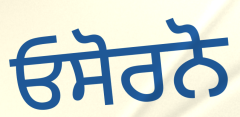
ਓਸੋਰਨੋ